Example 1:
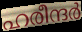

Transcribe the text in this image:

ഹരീന്ദർ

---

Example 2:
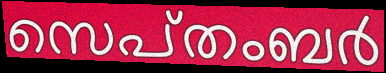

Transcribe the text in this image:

സെപ്‌തംബർ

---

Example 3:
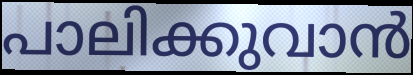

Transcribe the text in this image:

പാലിക്കുവാൻ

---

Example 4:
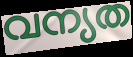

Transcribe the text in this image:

വന്യത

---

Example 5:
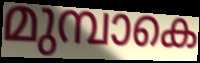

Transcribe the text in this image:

മുമ്പാകെ